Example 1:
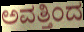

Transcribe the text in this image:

ಅವತ್ತಿಂದ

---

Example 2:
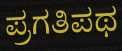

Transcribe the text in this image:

ಪ್ರಗತಿಪಥ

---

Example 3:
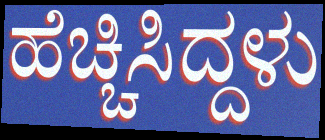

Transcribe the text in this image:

ಹೆಚ್ಚಿಸಿದ್ದಳು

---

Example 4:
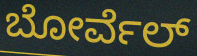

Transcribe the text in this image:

ಬೋರ್ವೆಲ್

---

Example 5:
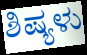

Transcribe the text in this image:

ಶಿಷ್ಯಳು